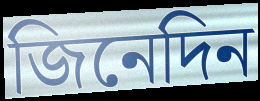
জিনেদিন